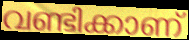
വണ്ടിക്കാണ്